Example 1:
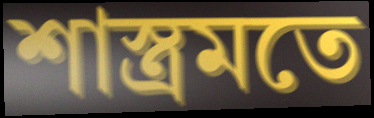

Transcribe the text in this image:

শাস্ত্রমতে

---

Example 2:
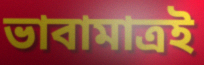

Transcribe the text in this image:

ভাবামাত্রই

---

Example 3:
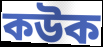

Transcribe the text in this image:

কউক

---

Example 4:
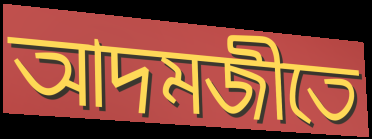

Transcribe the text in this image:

আদমজীতে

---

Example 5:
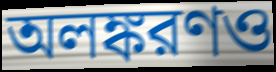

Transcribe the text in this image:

অলঙ্করণও